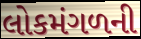
લોકમંગળની